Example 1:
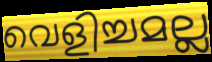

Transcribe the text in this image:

വെളിച്ചമല്ല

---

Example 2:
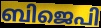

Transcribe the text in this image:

ബിജെപി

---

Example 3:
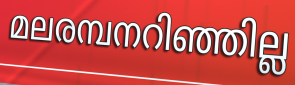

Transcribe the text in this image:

മലരമ്പനറിഞ്ഞില്ല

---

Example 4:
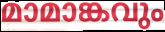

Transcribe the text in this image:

മാമാങ്കവും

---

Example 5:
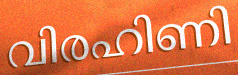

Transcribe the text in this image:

വിരഹിണി